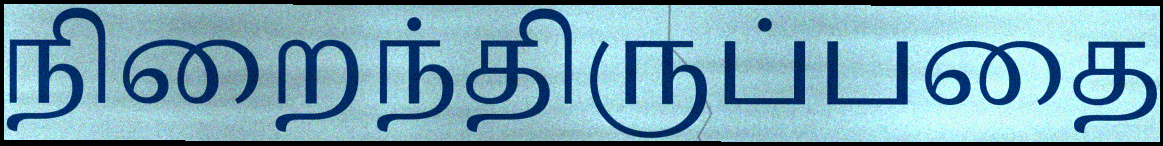
நிறைந்திருப்பதை